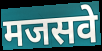
मजसवे